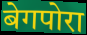
बेगपोरा